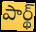
పార్థ్